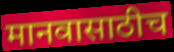
मानवासाठीच